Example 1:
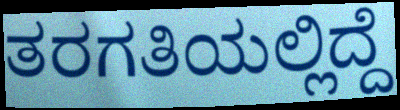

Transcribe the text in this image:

ತರಗತಿಯಲ್ಲಿದ್ದೆ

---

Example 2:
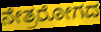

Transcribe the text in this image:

ನೇತ್ರರೋಗದ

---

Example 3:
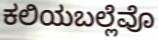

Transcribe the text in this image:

ಕಲಿಯಬಲ್ಲೆವೊ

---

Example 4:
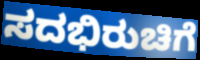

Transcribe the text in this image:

ಸದಭಿರುಚಿಗೆ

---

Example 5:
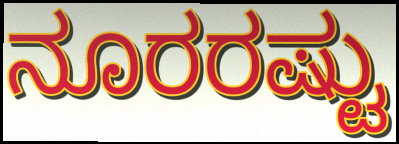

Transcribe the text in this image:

ನೂರರಷ್ಟು